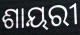
ଶାୟରୀ